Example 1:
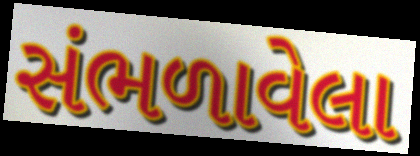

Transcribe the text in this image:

સંભળાવેલા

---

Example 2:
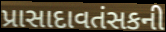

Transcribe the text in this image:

પ્રાસાદાવતંસકની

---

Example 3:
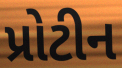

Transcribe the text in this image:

પ્રોટીન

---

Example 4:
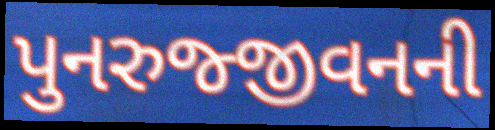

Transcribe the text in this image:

પુનરુજ્જીવનની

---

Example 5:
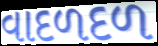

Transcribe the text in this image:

વાદળદળ